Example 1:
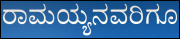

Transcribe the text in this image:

ರಾಮಯ್ಯನವರಿಗೂ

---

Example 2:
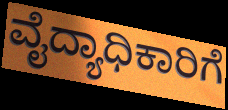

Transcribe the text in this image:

ವೈದ್ಯಾಧಿಕಾರಿಗೆ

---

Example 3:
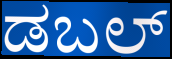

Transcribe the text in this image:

ಡಬಲ್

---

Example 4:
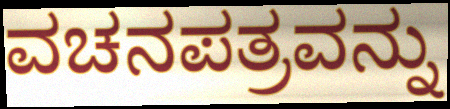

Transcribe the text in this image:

ವಚನಪತ್ರವನ್ನು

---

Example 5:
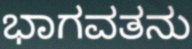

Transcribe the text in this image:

ಭಾಗವತನು